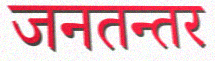
जनतन्तर